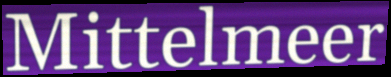
Mittelmeer